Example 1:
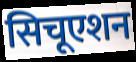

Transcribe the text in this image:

सिचूएशन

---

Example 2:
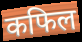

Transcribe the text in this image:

कफिल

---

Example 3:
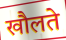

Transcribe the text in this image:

खौलते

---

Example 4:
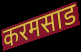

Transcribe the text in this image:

करमसाड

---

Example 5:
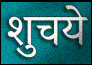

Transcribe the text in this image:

शुचये